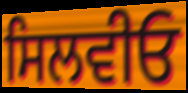
ਸਿਲਵੀਓ